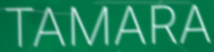
TAMARA